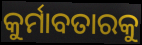
କୁର୍ମାବତାରକୁ